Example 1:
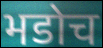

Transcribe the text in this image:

भडोच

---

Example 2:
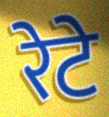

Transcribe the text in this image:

रेटे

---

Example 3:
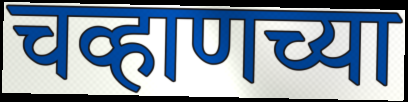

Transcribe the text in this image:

चव्हाणच्या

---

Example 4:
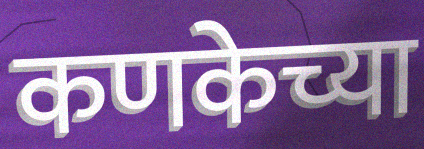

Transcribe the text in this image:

कणकेच्या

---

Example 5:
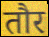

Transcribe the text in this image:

तौर